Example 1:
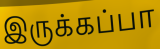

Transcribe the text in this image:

இருக்கப்பா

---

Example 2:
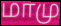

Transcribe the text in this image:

மாமு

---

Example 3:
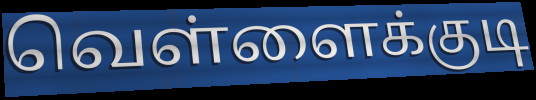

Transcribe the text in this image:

வெள்ளைக்குடி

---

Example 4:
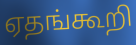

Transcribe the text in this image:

ஏதங்கூறி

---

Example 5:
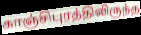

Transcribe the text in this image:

காஞ்சிபுரத்திலிருந்த